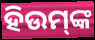
ହିଉମ୍‌ଙ୍କ